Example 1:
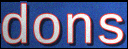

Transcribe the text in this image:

dons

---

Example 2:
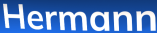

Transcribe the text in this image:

Hermann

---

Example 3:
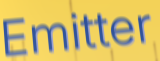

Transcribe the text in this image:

Emitter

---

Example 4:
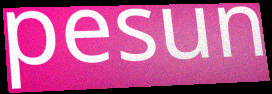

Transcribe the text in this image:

pesun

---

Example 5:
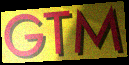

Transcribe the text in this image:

GTM